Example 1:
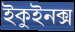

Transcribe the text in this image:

ইকুইনক্স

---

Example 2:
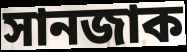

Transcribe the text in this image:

সানজাক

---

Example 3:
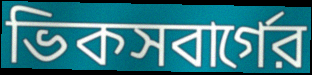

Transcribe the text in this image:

ভিকসবার্গের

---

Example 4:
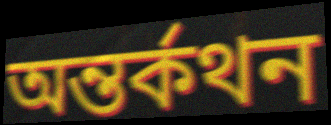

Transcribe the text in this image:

অন্তর্কথন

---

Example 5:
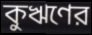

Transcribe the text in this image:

কুঋণের